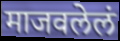
माजवलेलं